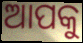
ଆପକୁ